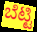
ಬೆಟ್ಟಿ